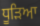
ਧੂੜਿਆ